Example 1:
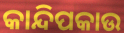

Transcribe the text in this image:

କାନ୍ଦିପକାଉ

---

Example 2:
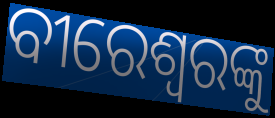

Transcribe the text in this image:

ବୀରେଶ୍ୱରଙ୍କୁ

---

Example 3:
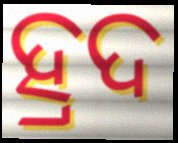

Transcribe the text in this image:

ହ୍ରଦ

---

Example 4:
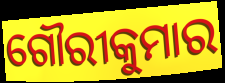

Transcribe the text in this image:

ଗୌରୀକୁମାର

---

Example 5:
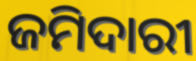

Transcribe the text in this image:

ଜମିଦାରୀ